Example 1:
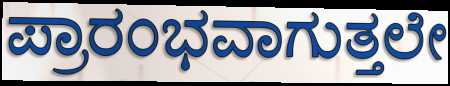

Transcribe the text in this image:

ಪ್ರಾರಂಭವಾಗುತ್ತಲೇ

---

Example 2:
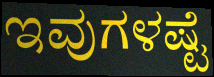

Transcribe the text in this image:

ಇವುಗಳಷ್ಟೆ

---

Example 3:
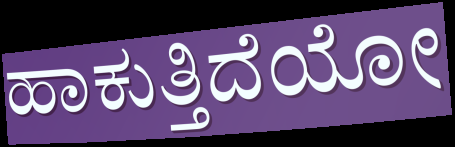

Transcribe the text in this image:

ಹಾಕುತ್ತಿದೆಯೋ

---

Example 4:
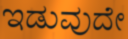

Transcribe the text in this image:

ಇಡುವುದೇ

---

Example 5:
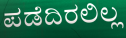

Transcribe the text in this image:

ಪಡೆದಿರಲಿಲ್ಲ